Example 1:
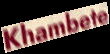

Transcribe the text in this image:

Khambete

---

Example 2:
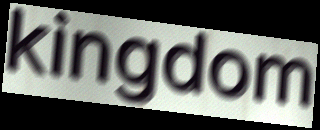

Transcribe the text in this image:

kingdom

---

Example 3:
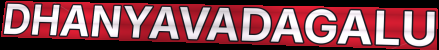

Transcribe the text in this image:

DHANYAVADAGALU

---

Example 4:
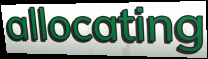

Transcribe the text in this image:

allocating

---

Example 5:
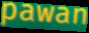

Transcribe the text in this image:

pawan